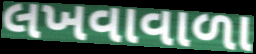
લખવાવાળા